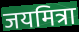
जयमित्रा